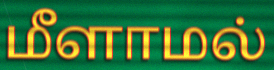
மீளாமல்